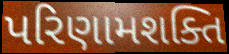
પરિણામશક્તિ